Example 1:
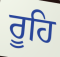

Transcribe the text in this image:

ਰੂਹਿ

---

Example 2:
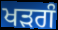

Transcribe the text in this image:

ਖੜਗੰ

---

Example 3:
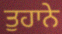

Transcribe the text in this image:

ਤੁਹਾਨੇ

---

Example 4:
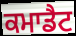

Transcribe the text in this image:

ਕਮਾਡੈਟ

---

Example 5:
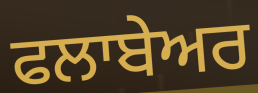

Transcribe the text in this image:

ਫਲਾਬੇਅਰ